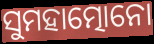
ସୁମହାତ୍ମୋନୋ